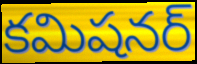
కమిషనర్